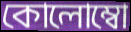
কোলোম্বো